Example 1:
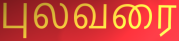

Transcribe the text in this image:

புலவரை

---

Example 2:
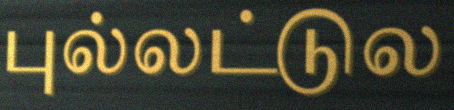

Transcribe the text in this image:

புல்லட்டுல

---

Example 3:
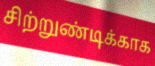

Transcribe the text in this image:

சிற்றுண்டிக்காக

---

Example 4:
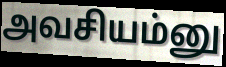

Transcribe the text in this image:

அவசியம்னு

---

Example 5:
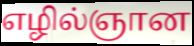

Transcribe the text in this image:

எழில்ஞான